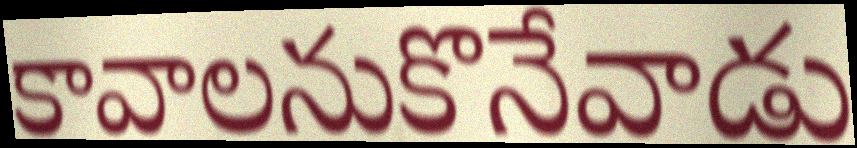
కావాలనుకొనేవాడు